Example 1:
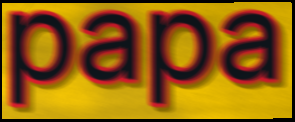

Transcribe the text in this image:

papa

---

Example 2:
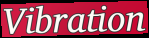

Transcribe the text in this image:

Vibration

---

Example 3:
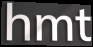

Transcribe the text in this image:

hmt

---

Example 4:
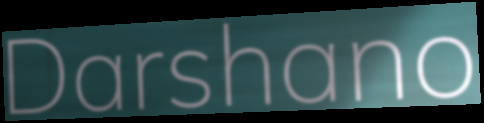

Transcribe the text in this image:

Darshano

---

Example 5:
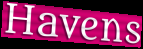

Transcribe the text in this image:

Havens